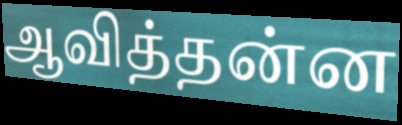
ஆவித்தன்ன